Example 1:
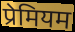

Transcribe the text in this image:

प्रेमियम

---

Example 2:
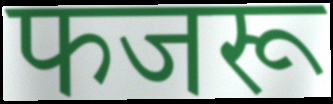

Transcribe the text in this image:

फजरू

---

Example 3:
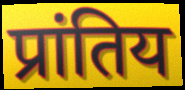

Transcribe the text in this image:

प्रांतिय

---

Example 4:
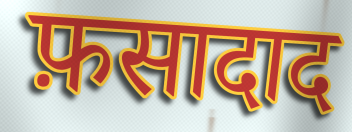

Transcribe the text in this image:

फ़सादाद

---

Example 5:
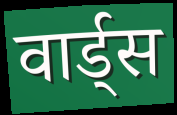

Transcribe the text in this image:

वार्ड्स